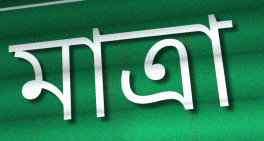
মাত্রা